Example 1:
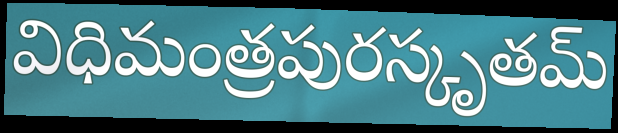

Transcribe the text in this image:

విధిమంత్రపురస్కృతమ్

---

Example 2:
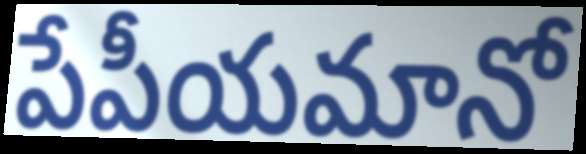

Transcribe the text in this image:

పేపీయమానో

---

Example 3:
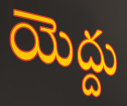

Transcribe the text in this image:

యెద్దు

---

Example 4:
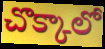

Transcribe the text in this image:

చొక్కాలో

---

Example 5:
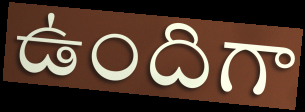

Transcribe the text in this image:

ఉందిగా